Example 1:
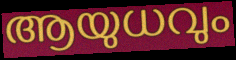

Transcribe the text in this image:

ആയുധവും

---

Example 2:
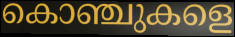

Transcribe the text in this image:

കൊഞ്ചുകളെ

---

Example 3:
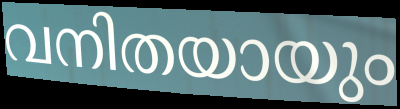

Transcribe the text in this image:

വനിതയായും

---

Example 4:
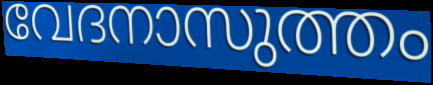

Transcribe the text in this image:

വേദനാസുത്തം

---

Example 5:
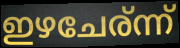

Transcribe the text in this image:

ഇഴചേര്ന്ന്